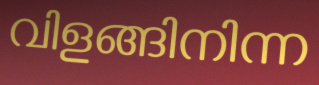
വിളങ്ങിനിന്ന